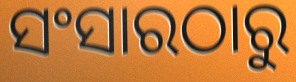
ସଂସାରଠାରୁ